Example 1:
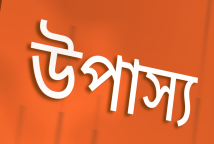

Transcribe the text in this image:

উপাস্য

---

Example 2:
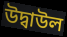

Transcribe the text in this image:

উদ্বাউল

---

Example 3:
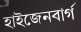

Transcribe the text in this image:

হাইজেনবাৰ্গ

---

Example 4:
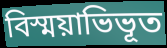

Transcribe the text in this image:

বিস্ময়াভিভূত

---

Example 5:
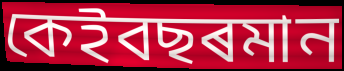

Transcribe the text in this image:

কেইবছৰমান